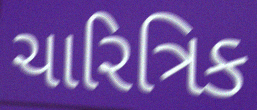
ચારિત્રિક